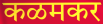
कळमकर